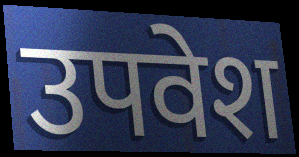
उपवेश